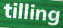
tilling